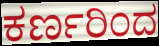
ಕರ್ಣರಿಂದ